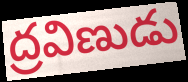
ద్రవిణుడు